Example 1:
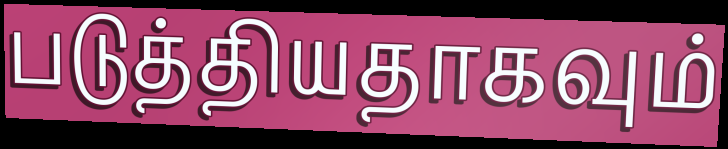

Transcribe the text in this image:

படுத்தியதாகவும்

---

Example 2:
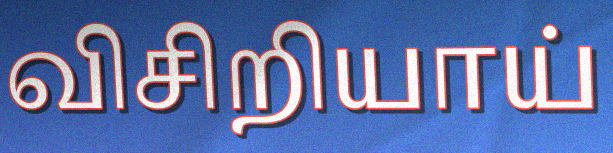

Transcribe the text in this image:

விசிறியாய்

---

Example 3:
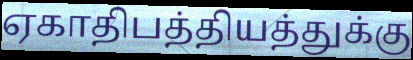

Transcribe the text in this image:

ஏகாதிபத்தியத்துக்கு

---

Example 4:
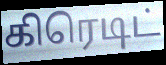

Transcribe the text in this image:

கிரெடிட்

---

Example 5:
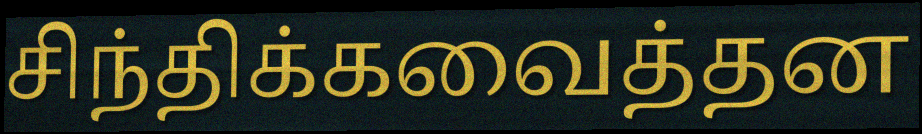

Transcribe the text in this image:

சிந்திக்கவைத்தன